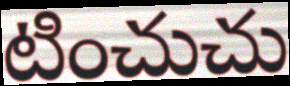
టించుచు